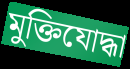
মুক্তিযোদ্ধা